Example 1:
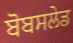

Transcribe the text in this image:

ਬੋਬਸਲੇਡ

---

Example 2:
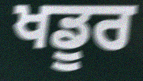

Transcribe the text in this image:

ਖਡੂਰ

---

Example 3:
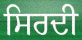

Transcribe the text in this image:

ਸਿਰਦੀ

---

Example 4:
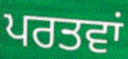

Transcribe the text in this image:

ਪਰਤਵਾਂ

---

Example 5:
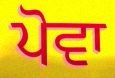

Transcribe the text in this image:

ਪੋਵਾ